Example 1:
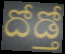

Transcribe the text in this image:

దోడ్తో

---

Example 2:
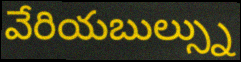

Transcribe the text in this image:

వేరియబుల్స్ను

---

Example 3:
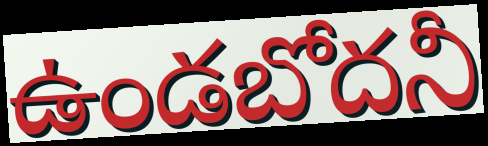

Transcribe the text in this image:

ఉండబోదనీ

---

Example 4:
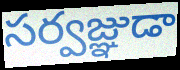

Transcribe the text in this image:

సర్వజ్ఞుడా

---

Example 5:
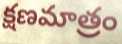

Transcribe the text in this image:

క్షణమాత్రం